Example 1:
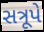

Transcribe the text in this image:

સત્રૂપે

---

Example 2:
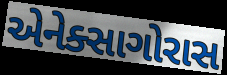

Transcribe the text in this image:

એનેક્સાગોરાસ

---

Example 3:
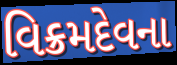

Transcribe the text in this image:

વિક્રમદેવના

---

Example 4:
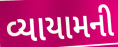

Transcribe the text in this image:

વ્યાયામની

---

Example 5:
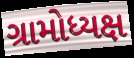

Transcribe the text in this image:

ગ્રામોધ્યક્ષ